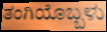
ತಂಗಿಯೊಬ್ಬಳು